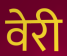
वेरी